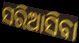
ସରିଆସିବା